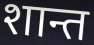
शान्त